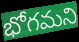
భోగమని